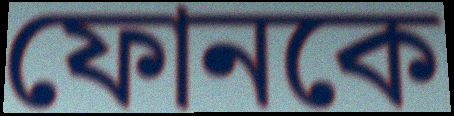
ফোনকে